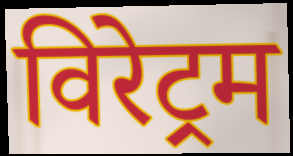
विरेट्रम